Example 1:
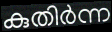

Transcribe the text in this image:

കുതിർന്ന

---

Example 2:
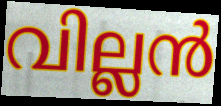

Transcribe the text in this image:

വില്ലൻ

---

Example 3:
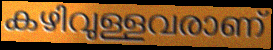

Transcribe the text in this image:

കഴിവുള്ളവരാണ്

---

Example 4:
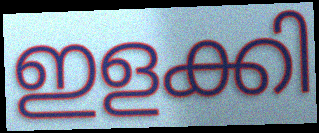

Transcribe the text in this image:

ഇളക്കി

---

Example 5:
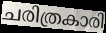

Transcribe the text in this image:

ചരിത്രകാരി